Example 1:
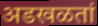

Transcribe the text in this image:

अडखळतां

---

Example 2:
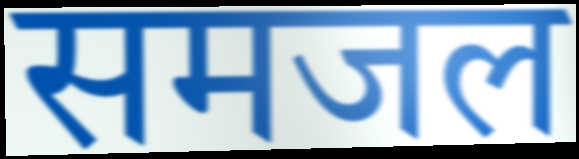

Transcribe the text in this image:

समजल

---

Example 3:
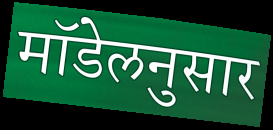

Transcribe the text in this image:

मॉडेलनुसार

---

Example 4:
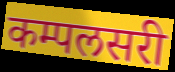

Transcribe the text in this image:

कम्पलसरी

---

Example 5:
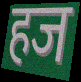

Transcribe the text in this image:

हज